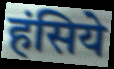
हंसिये